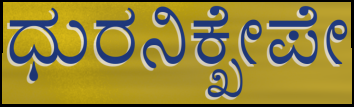
ಧುರನಿಕ್ಖೇಪೇ